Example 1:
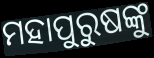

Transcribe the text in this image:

ମହାପୁରୁଷଙ୍କୁ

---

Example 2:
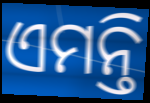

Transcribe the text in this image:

ଏମନ୍ତି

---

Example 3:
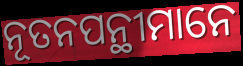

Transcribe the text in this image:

ନୂତନପନ୍ଥୀମାନେ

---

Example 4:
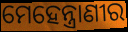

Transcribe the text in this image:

ମେହେନ୍ତ୍ରାଣୀର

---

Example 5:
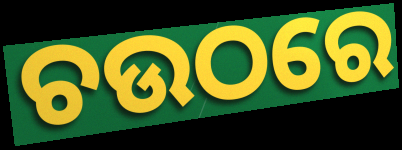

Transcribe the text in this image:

ଚଉଠରେ